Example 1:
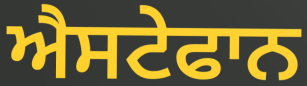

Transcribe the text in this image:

ਐਸਟੇਫਾਨ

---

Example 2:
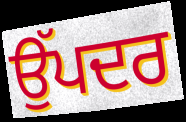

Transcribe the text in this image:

ਉੱਪਦਰ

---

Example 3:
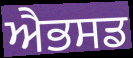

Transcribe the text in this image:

ਐਭਸਡ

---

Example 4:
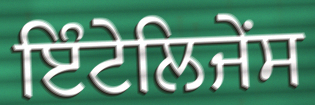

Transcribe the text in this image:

ਇੰਟੇਲਿਜੇਂਸ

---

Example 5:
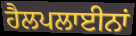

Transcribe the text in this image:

ਹੈਲਪਲਾਈਨਾਂ